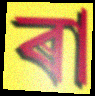
ৰা